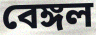
বেঙ্গল